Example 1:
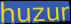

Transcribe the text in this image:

huzur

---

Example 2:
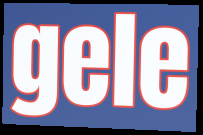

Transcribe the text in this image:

gele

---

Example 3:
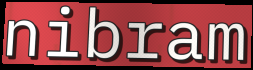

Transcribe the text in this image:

nibram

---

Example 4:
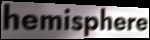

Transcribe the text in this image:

hemisphere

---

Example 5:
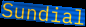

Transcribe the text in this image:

Sundial